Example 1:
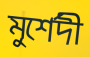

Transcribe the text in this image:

মুর্শেদী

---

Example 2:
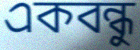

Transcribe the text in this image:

একবন্ধু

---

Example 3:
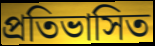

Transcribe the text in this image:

প্রতিভাসিত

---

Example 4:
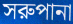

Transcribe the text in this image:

সরুপানা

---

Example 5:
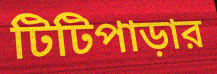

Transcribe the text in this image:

টিটিপাড়ার